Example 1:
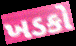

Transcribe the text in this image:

ખડકો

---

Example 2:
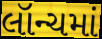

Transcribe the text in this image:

લૉન્ચમાં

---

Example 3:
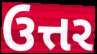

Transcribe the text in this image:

ઉત્તર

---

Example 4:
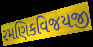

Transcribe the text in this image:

રમણિકવિજયજી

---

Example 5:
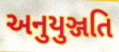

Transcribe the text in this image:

અનુયુઞ્જતિ